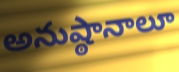
అనుష్ఠానాలూ